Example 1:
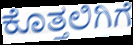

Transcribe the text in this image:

ಕೊತ್ತಲಿಗಿಗೆ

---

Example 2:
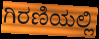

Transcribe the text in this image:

ಗಿರಣಿಯಲ್ಲಿ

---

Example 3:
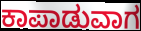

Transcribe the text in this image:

ಕಾಪಾಡುವಾಗ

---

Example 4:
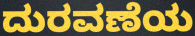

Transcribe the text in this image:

ದುರವಣೆಯ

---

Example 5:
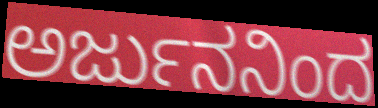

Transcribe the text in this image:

ಅರ್ಜುನನಿಂದ